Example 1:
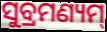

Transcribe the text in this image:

ସୁବ୍ରମଣ୍ୟମ୍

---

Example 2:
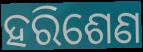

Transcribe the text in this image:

ହରିଶେଣ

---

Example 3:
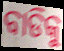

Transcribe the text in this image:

ବାଡିକୁ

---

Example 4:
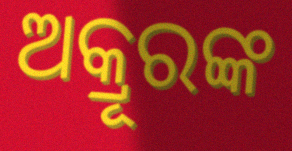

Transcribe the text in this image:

ଅକ୍ରୂରଙ୍କ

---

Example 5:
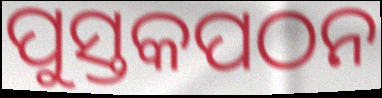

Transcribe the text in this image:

ପୁସ୍ତକପଠନ